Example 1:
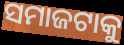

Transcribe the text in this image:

ସମାଜଟାକୁ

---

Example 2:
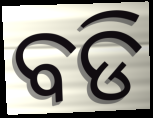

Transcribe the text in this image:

ବଡି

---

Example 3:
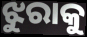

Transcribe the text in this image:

ଝୁରାକୁ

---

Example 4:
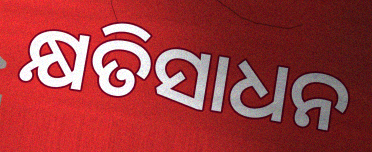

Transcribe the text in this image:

କ୍ଷତିସାଧନ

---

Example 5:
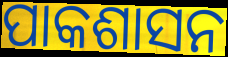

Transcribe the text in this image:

ପାକଶାସନ